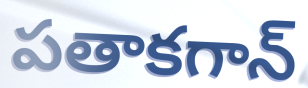
పతాకగాన్